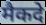
मैकदे